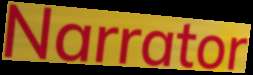
Narrator